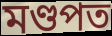
মণ্ডপত